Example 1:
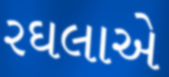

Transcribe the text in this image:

રઘલાએ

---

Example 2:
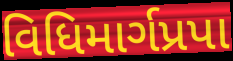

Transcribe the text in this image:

વિધિમાર્ગપ્રપા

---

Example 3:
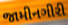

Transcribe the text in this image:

જામીનગીરી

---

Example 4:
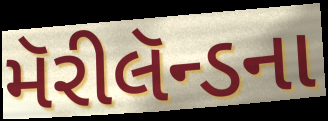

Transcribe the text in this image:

મૅરીલૅન્ડના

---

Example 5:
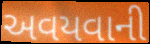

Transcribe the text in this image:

અવયવાની